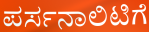
ಪರ್ಸನಾಲಿಟಿಗೆ